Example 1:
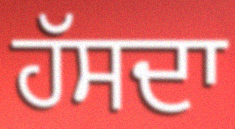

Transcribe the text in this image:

ਹੱਸਦਾ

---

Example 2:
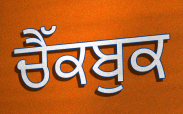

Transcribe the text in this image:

ਚੈੱਕਬੁਕ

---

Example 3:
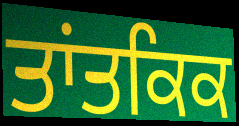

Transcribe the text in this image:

ਤਾਂਤਕਿਕ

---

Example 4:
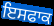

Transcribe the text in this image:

ਇਸਫਾਕ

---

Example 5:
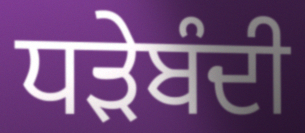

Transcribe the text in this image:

ਧੜੇਬੰਦੀ